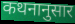
कथनानुसार